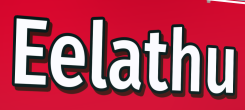
Eelathu